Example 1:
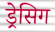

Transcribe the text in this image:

ड्रेसिग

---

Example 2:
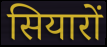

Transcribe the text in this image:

सियारों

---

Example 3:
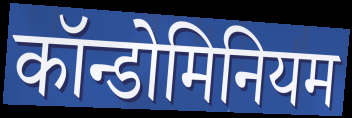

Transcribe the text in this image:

कॉन्डोमिनियम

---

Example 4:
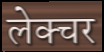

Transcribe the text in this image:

लेक्चर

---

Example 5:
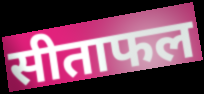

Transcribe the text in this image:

सीताफल